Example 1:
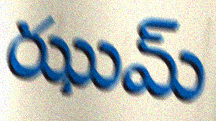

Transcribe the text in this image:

ఝుమ్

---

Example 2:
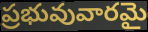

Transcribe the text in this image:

ప్రభువువారమై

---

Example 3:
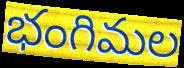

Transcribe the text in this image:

భంగిమల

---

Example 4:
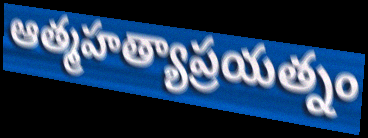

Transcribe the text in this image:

ఆత్మహత్యాప్రయత్నం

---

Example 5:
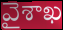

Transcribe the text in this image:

వైశాఖ